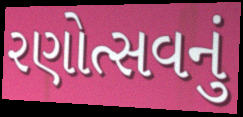
રણોત્સવનું